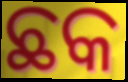
ଛକ